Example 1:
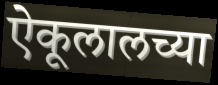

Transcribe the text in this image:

ऐकूलालच्या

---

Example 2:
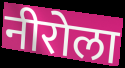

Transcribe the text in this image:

नीरोला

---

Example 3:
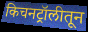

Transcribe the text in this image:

किचनट्रॉलीतून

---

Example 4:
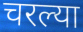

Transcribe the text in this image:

चरल्या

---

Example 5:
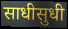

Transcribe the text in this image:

साधीसुधी